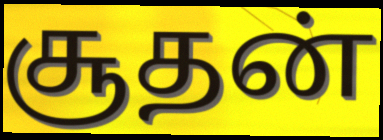
சூதன்